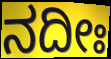
ನದೀಃ